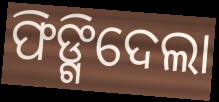
ଫିଙ୍ଗିଦେଲା